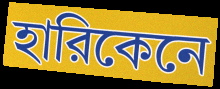
হারিকেনে